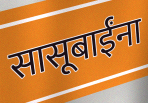
सासूबाईंना